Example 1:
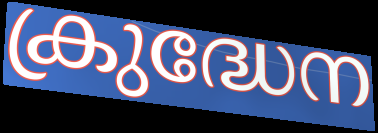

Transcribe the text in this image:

ക്രുദ്ധേന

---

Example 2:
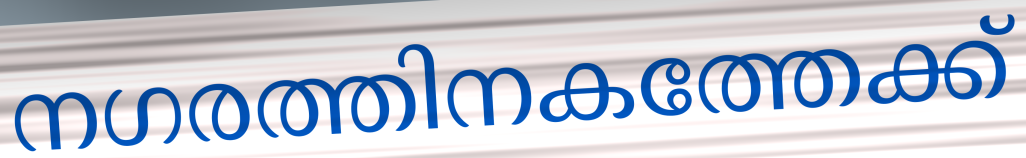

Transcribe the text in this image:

നഗരത്തിനകത്തേക്ക്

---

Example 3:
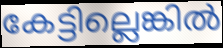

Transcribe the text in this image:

കേട്ടില്ലെങ്കിൽ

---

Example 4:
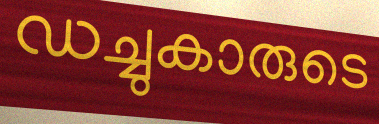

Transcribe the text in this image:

ഡച്ചുകാരുടെ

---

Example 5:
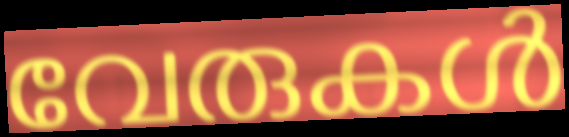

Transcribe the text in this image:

വേരുകൾ